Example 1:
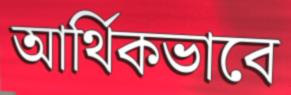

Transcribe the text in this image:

আর্থিকভাবে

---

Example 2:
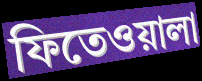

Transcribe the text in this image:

ফিতেওয়ালা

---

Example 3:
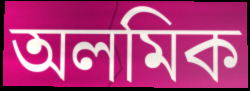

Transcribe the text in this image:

অলমিক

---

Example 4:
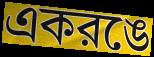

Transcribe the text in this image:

একরঙে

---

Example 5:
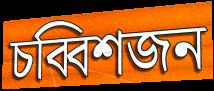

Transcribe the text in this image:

চব্বিশজন